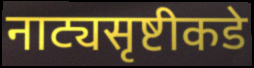
नाट्यसृष्टीकडे